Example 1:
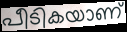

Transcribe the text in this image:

പീടികയാണ്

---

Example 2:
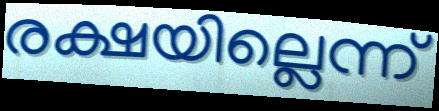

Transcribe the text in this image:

രക്ഷയില്ലെന്ന്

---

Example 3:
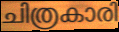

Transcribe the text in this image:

ചിത്രകാരി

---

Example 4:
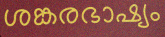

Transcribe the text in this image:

ശങ്കരഭാഷ്യം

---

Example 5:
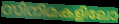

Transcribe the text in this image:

സിനിമകളിലോ